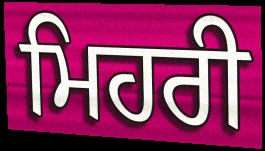
ਮਿਹਰੀ